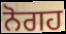
ਨੋਗਹ